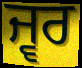
ਜ੍ਵਰ